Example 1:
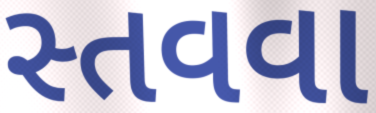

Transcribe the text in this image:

સ્તવવા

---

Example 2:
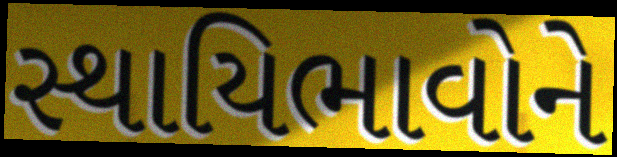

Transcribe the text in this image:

સ્થાયિભાવોને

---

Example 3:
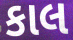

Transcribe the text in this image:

કાલ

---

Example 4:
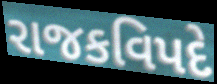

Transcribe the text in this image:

રાજકવિપદે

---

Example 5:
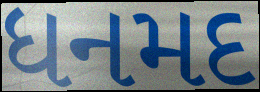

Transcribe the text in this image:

ધનમદ